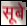
सूबे